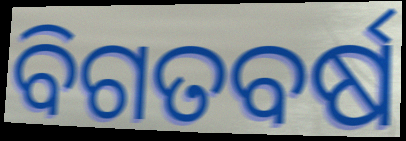
ବିଗତବର୍ଷ